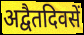
अद्वैतदिवसें